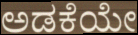
ಅಡಕೆಯೇ